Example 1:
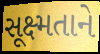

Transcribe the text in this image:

સૂક્ષ્મતાને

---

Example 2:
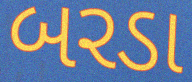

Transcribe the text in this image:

બરડા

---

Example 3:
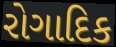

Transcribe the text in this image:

રોગાદિક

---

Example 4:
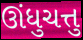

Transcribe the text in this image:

ઊંધુચત્તુ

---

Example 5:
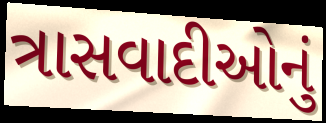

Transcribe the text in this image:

ત્રાસવાદીઓનું